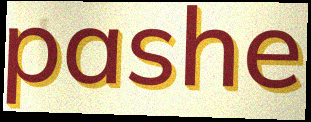
pashe